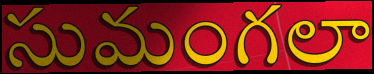
సుమంగలా